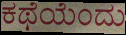
ಕಥೆಯೆಂದು